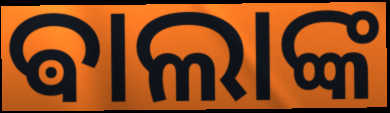
ଵାଲାଙ୍କ